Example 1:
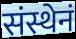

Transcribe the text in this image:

संस्थेनं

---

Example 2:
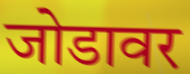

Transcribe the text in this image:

जोडावर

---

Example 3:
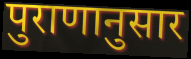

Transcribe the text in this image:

पुराणानुसार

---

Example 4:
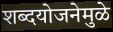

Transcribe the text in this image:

शब्दयोजनेमुळे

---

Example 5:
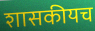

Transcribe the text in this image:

शासकीयच